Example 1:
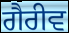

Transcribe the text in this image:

ਗੈਰੀਵ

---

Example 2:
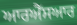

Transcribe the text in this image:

ਆਰਐੱਸਆਰ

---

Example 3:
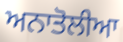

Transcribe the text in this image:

ਅਨਾਤੋਲੀਆ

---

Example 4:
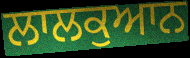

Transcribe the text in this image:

ਲਾਲਕੁਆਨ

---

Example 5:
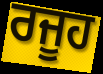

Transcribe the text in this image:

ਰਜੂਹ